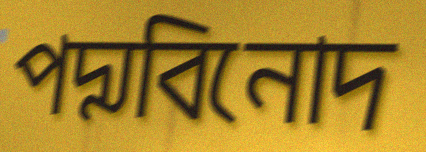
পদ্মবিনোদ